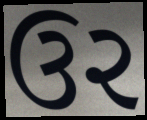
ઉર